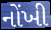
નોંખી